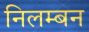
निलम्‍बन